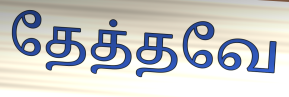
தேத்தவே